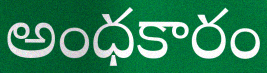
అంధకారం